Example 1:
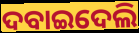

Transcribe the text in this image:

ଦବାଇଦେଲି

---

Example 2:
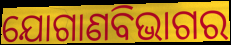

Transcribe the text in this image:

ଯୋଗାଣବିଭାଗର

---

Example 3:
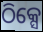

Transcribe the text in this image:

ଠିକ୍ସେ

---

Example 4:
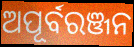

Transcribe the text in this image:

ଅପୂର୍ବରଞ୍ଜନ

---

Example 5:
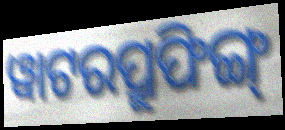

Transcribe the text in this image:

ୱାଟରପ୍ରୁଫିଙ୍ଗ୍